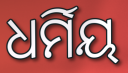
ଧର୍ମିୟ